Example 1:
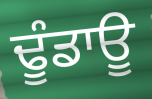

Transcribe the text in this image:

ਢੂੰਡਾਊ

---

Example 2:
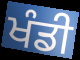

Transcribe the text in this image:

ਖੰਡੀ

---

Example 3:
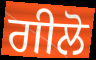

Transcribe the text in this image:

ਗੀਲੋ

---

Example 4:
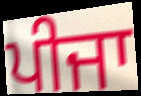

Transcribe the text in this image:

ਪੀਜਾ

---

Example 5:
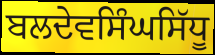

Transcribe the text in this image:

ਬਲਦੇਵਸਿੰਘਸਿੱਧੂ